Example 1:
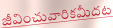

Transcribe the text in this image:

జీవించువారికమీదట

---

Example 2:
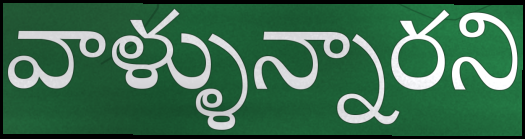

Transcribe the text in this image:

వాళ్ళున్నారని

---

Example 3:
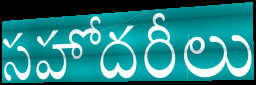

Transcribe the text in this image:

సహోదరీలు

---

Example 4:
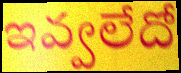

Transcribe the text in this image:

ఇవ్వలేదో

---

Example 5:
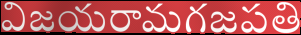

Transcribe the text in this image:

విజయరామగజపతి